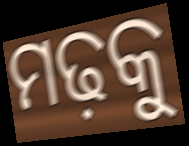
ମଢ଼କୁ